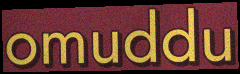
omuddu